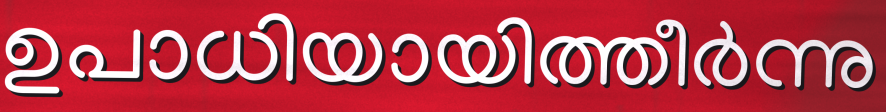
ഉപാധിയായിത്തീർന്നു